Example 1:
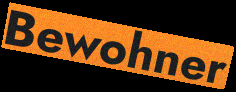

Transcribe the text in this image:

Bewohner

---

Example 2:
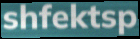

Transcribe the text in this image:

shfektsp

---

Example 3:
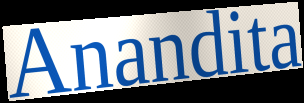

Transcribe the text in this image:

Anandita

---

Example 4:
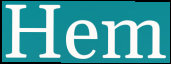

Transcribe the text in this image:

Hem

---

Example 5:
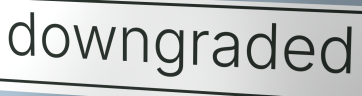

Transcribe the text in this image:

downgraded